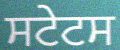
ਸਟੇਟਸ